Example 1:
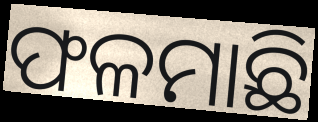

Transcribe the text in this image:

ଫଳମାଛି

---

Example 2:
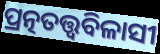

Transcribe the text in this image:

ପ୍ରତ୍ନତତ୍ତ୍ବବିଳାସୀ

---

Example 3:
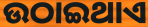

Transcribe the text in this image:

ଉଠାଇଥାଏ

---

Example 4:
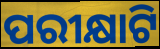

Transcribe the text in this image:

ପରୀକ୍ଷାଟି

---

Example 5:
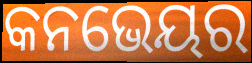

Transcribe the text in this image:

କନଭେୟର